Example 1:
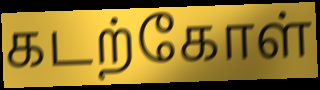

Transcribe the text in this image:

கடற்கோள்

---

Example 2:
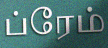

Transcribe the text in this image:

ப்ரேம்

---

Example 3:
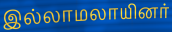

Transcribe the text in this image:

இல்லாமலாயினர்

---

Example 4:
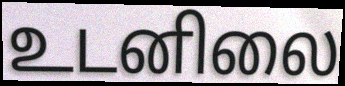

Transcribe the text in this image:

உடனிலை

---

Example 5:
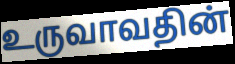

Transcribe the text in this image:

உருவாவதின்